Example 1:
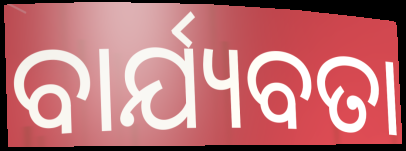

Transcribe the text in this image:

ବାର୍ଯ୍ୟବତା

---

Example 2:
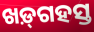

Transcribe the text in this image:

ଖଡ଼୍‌ଗହସ୍ତ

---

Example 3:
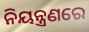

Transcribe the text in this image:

ନିୟନ୍ତ୍ରଣରେ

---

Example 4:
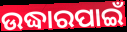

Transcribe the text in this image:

ଉଦ୍ଧାରପାଇଁ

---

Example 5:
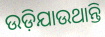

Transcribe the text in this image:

ଉଡ଼ିଯାଉଥାନ୍ତି